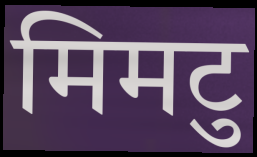
मिमटु